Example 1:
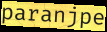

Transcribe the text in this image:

paranjpe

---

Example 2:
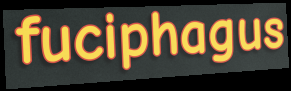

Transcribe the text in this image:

fuciphagus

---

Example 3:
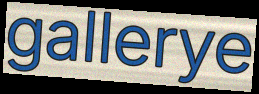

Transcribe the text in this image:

gallerye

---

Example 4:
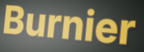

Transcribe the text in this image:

Burnier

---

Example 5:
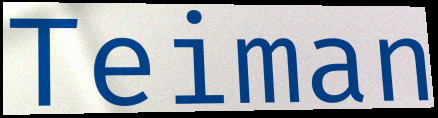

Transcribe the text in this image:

Teiman